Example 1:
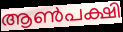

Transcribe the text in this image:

ആൺപക്ഷി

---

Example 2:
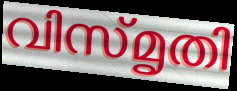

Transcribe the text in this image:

വിസ്മൃതി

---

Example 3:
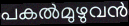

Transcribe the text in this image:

പകൽമുഴുവൻ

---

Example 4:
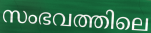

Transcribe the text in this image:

സംഭവത്തിലെ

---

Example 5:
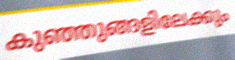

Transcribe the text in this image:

കുഞ്ഞുങ്ങളിലേക്കും